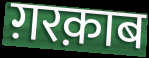
ग़रक़ाब